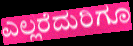
ಎಲ್ಲರೆದುರಿಗೂ